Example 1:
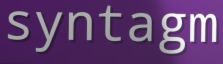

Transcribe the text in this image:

syntagm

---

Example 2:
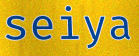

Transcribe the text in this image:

seiya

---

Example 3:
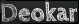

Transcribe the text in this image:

Deokar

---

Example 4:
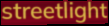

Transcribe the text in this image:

streetlight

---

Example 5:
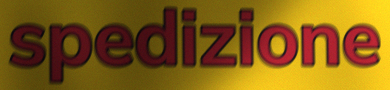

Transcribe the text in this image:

spedizione